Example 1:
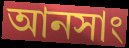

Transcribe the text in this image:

আনসাং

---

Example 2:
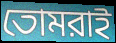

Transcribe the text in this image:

তোমরাই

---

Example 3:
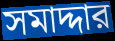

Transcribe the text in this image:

সমাদ্দার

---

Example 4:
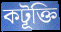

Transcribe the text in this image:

কটূক্তি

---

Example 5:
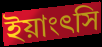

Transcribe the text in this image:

ইয়াংৎসি